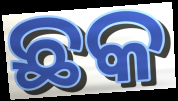
ଛକ